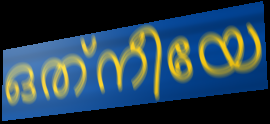
ഒത്‌നീയേ